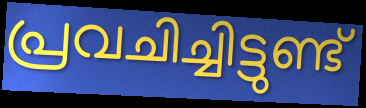
പ്രവചിച്ചിട്ടുണ്ട്